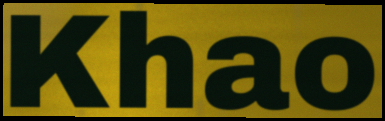
Khao